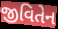
જીવિતેન